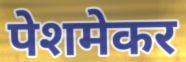
पेशमेकर